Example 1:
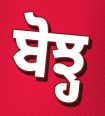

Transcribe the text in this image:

ਬੋਝ੍ਹ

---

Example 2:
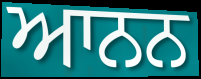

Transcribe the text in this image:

ਆਨਨ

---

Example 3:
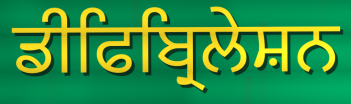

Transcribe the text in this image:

ਡੀਫਿਬ੍ਰਿਲੇਸ਼ਨ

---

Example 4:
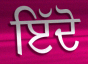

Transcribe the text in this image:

ਇੱਦੋ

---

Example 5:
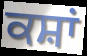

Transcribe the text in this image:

ਕਸ਼ਾਂ